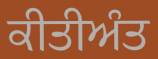
ਕੀਤੀਅੰਤ